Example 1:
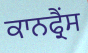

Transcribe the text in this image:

ਕਾਨਫ੍ਰੈਂਸ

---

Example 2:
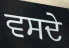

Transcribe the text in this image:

ਵਸਦੇ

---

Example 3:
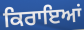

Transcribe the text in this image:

ਕਿਰਾਇਆਂ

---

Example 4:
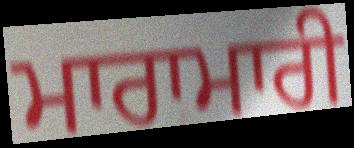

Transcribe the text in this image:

ਮਾਰਾਮਾਰੀ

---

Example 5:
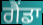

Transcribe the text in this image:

ਗੈਂਡਾ